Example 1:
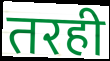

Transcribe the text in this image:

तरही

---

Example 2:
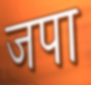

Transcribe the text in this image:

जपा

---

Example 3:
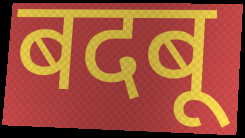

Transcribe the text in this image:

बदबू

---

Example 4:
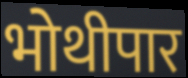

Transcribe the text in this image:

भोथीपार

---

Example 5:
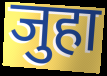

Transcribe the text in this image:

जुहा